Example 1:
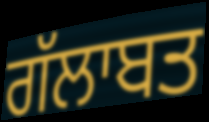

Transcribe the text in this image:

ਗੱਲਾਬਤ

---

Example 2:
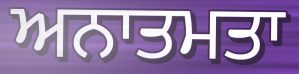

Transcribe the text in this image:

ਅਨਾਤਮਤਾ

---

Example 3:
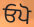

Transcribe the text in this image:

ਓਪੋ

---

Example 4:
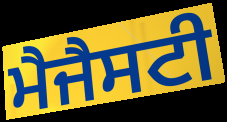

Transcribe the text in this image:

ਮੈਜੈਸਟੀ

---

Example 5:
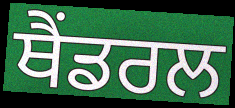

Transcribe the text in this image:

ਥੈਂਡਰਲ